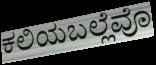
ಕಲಿಯಬಲ್ಲೆವೊ